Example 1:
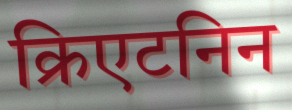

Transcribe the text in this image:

क्रिएटनिन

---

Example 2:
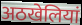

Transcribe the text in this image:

अठखेलियां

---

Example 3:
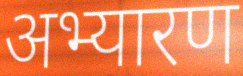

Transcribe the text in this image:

अभ्यारण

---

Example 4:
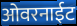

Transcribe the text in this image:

ओवरनाईट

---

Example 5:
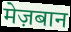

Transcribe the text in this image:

मेज़बान